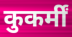
कुकर्मीं